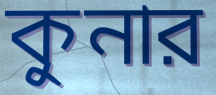
কুনার